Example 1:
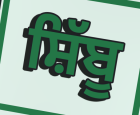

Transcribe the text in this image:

ਸ਼ਿੱਬੂ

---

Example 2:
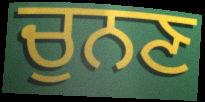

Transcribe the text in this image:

ਚੁਨਣ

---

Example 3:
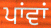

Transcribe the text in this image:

ਪਾਂਵਾਂ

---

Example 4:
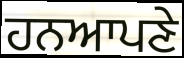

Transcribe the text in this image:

ਹਨਆਪਣੇ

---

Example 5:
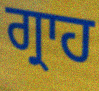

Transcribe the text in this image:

ਗ੍ਰਾਹ